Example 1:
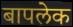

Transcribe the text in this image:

बापलेक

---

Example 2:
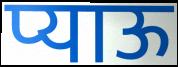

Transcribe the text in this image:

प्याऊ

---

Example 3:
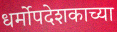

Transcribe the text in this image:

धर्मोपदेशकाच्या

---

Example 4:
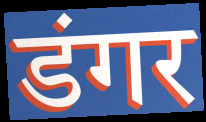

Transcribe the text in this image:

डंगर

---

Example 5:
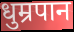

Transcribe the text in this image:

धुम्रपान